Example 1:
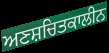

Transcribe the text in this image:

ਅਣਸ਼ਚਿਤਕਾਲੀਨ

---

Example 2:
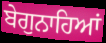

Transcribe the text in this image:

ਬੇਗੁਨਾਹਿਆਂ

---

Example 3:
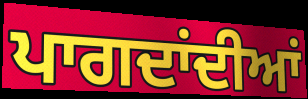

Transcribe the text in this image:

ਪਾਗਦਾਂਦੀਆਂ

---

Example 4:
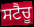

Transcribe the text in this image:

ਸਟੈਚੂ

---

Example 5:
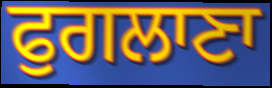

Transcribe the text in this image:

ਫੁਗਲਾਣਾ